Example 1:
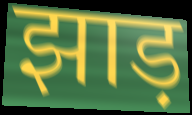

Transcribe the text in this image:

झाड़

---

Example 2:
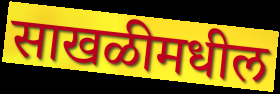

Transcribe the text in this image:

साखळीमधील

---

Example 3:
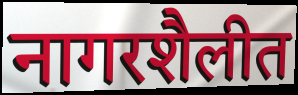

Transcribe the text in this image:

नागरशैलीत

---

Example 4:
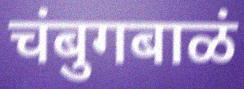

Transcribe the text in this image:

चंबुगबाळं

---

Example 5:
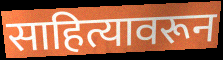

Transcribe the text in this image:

साहित्यावरून